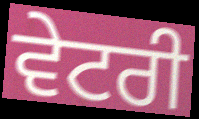
ਵੇਟਰੀ